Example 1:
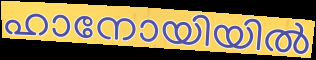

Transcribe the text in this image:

ഹാനോയിയിൽ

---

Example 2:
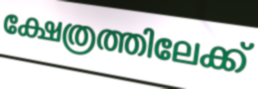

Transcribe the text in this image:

ക്ഷേത്രത്തിലേക്ക്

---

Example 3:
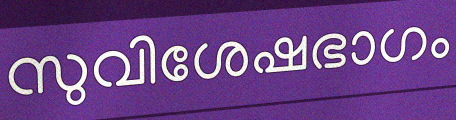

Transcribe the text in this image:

സുവിശേഷഭാഗം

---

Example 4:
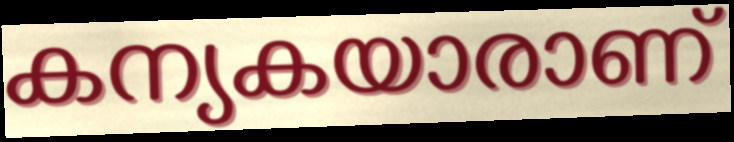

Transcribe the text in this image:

കന്യകയാരാണ്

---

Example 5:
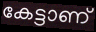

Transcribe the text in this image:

കേട്ടാണ്